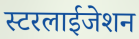
स्टरलाईजेशन